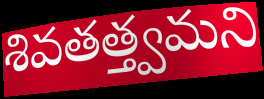
శివతత్త్వమని